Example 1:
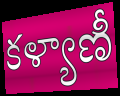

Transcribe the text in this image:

కళ్యాణీ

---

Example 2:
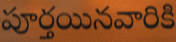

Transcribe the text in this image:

పూర్తయినవారికి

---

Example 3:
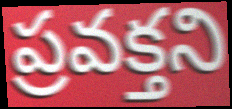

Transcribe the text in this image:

ప్రవక్తని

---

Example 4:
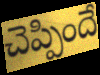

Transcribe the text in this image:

చెప్పిందే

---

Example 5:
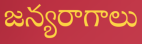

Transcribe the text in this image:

జన్యరాగాలు